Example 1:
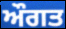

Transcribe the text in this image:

ਔਗਤ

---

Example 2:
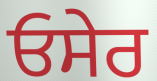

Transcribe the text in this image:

ਓਸੇਰ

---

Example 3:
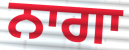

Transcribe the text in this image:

ਨਾਗਾ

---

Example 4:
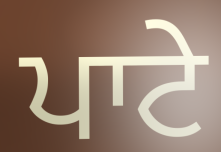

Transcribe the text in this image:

ਪਾਟੇ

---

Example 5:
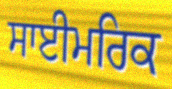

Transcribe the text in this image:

ਸਾਈਮਰਿਕ